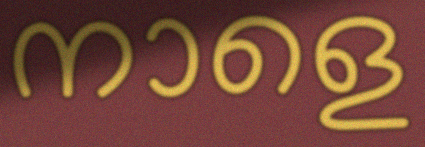
നാളെ